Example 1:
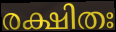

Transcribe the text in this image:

രക്ഷിതഃ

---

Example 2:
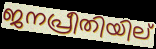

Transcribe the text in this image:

ജനപ്രീതിയില്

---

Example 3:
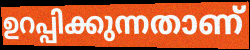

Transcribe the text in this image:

ഉറപ്പിക്കുന്നതാണ്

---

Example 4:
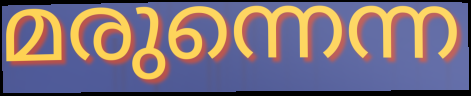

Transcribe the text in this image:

മരുന്നെന്ന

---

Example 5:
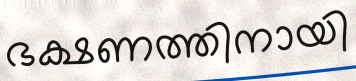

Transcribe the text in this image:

ഭക്ഷണത്തിനായി